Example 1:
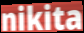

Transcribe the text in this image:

nikita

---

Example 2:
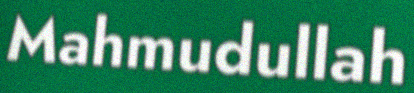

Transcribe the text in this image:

Mahmudullah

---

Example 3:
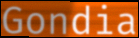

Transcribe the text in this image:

Gondia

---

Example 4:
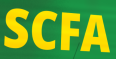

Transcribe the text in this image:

SCFA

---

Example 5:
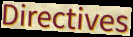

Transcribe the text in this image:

Directives